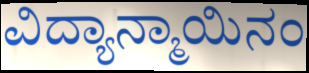
ವಿದ್ಯಾನ್ಮಾಯಿನಂ